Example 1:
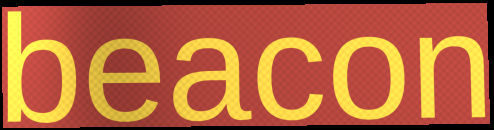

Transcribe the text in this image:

beacon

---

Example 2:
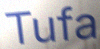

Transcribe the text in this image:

Tufa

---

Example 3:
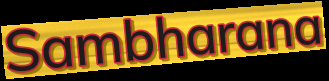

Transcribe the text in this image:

Sambharana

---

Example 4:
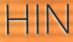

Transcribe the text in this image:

HIN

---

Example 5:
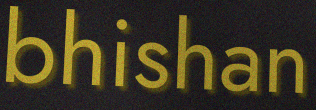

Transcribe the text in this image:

bhishan